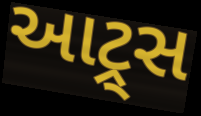
આટ્ર્સ